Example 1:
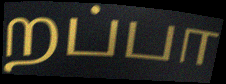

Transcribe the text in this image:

றப்பா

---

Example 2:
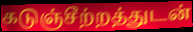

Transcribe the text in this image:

கடுஞ்சீற்றத்துடன்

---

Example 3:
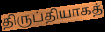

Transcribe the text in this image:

திருப்தியாகத்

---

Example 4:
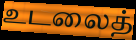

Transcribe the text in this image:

உடலைத்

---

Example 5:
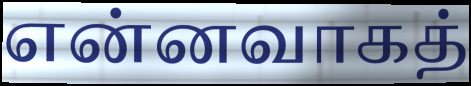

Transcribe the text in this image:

என்னவாகத்